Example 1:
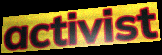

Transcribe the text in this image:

activist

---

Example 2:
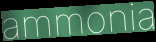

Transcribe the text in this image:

ammonia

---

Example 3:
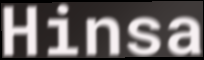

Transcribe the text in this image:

Hinsa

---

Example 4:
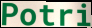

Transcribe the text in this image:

Potri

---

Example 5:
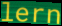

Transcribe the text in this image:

lern